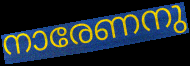
നാരേണനു